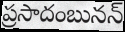
ప్రసాదంబునన్